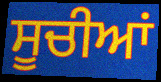
ਸੂਚੀਆਂ